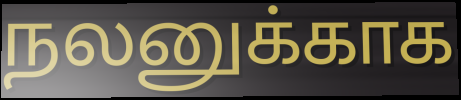
நலனுக்காக